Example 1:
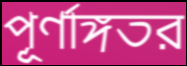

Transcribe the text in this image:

পূর্ণাঙ্গতর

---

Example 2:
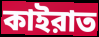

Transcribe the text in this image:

কাইরাত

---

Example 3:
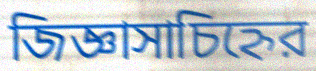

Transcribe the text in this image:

জিজ্ঞাসাচিহ্নের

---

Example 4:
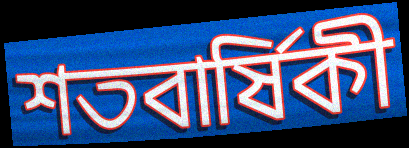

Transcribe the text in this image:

শতবার্ষিকী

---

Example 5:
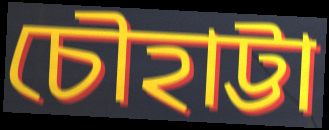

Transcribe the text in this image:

চৌহাট্টা